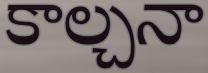
కాల్చనా